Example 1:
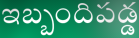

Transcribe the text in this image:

ఇబ్బందిపడ్డ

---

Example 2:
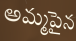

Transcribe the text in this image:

అమ్మపైన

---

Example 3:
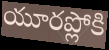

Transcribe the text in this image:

యూరప్లోకి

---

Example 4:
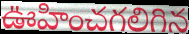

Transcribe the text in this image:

ఊహించగలిగిన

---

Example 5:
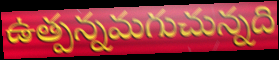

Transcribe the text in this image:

ఉత్పన్నమగుచున్నది